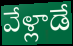
వేళ్లాడే